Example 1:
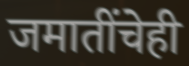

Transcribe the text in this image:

जमातींचेही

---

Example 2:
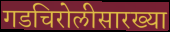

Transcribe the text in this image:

गडचिरोलीसारख्या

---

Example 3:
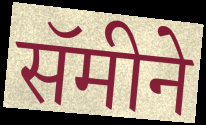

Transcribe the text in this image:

सॅमीने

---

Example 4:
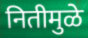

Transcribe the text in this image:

नितीमुळे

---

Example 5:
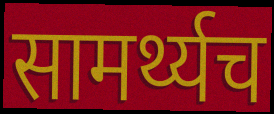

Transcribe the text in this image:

सामर्थ्यच